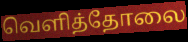
வெளித்தோலை